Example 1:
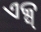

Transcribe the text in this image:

ଏକ୍ସ୍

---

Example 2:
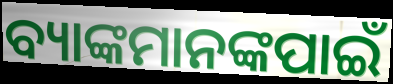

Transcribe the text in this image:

ବ୍ୟାଙ୍କମାନଙ୍କପାଇଁ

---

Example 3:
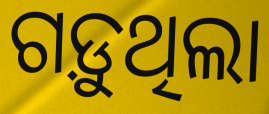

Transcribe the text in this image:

ଗଡ଼ୁଥିଲା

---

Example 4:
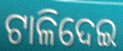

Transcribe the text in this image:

ଟାଳିଦେଇ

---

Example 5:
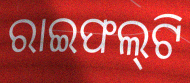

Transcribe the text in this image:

ରାଇଫଲ୍‍ଟି